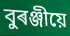
বুৰঞ্জীয়ে